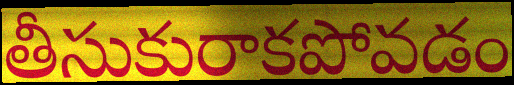
తీసుకురాకపోవడం